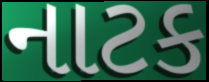
નાટક